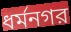
ধর্মনগর